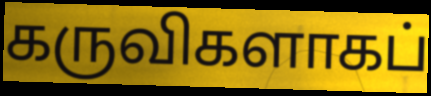
கருவிகளாகப்